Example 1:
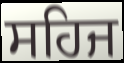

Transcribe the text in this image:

ਸਹਿਜ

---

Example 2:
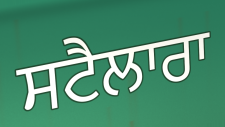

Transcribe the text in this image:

ਸਟੈਲਾਰਾ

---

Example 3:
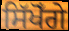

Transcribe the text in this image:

ਸਿੱਖੋਁਗੇ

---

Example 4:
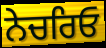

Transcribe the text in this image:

ਨੇਚਰਿਓ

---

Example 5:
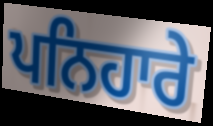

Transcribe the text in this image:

ਪਨਿਹਾਰੇ